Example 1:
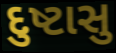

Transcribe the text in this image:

દુષ્ટાસુ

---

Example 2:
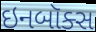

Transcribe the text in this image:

ઇનબૉક્સ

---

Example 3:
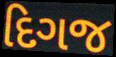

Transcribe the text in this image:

દિગજ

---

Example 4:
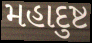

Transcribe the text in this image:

મહાદુષ્ટ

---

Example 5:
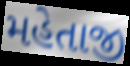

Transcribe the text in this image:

મહેતાજી